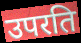
उपरति